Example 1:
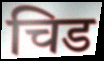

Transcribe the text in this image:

चिड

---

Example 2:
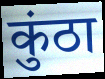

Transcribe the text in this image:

कुंठा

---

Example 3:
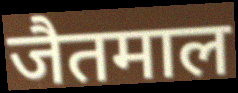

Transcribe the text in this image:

जैतमाल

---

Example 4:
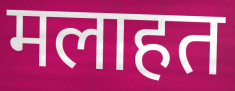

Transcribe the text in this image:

मलाहत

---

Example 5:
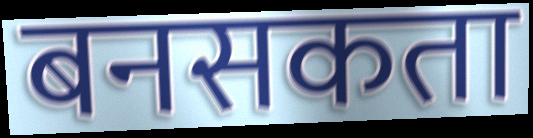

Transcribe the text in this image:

बनसकता